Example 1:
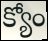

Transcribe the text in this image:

క్యోం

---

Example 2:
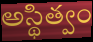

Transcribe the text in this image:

అస్థిత్వం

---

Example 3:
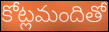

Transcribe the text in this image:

కోట్లమందితో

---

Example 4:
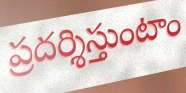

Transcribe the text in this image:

ప్రదర్శిస్తుంటాం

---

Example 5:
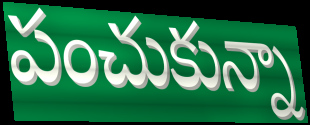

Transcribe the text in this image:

పంచుకున్నా